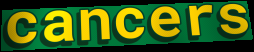
cancers